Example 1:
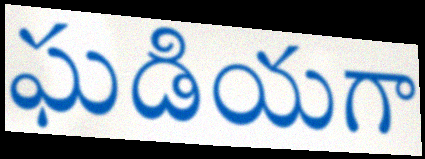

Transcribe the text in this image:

ఘడియగా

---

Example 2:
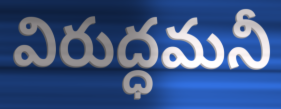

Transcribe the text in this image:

విరుద్ధమనీ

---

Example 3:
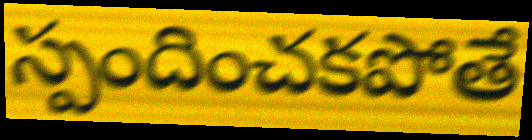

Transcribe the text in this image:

స్పందించకపోతే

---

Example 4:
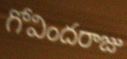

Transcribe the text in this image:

గోవిందరాజు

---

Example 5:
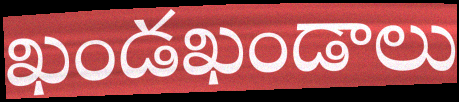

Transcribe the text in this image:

ఖండఖండాలు